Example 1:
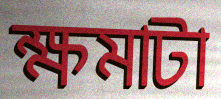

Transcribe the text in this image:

ক্ষমাটা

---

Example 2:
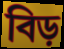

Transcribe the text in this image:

বিড়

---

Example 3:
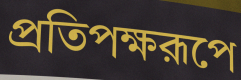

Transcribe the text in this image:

প্রতিপক্ষরূপে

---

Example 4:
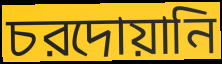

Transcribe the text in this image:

চরদোয়ানি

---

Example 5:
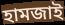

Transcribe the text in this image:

হামজাই